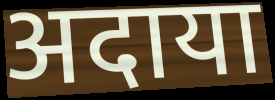
अदाया